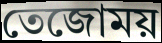
তেজোময়